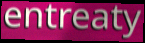
entreaty